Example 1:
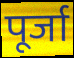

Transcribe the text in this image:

पूर्जा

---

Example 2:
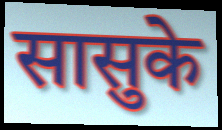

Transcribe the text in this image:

सासुके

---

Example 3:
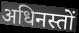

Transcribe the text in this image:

अधिनस्तों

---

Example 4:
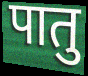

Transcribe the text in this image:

पातु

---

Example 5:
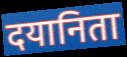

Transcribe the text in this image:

दयानिता